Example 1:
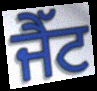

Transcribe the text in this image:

ਜੈੱਟ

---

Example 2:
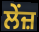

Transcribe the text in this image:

ਲੇਂਜ਼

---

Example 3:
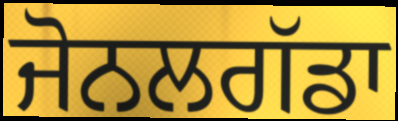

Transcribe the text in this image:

ਜੋਨਲਗੱਡਾ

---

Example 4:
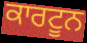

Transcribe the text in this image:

ਕਾਰਟੂਨ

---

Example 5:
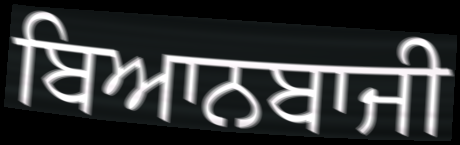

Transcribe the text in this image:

ਬਿਆਨਬਾਜੀ